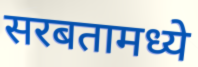
सरबतामध्ये